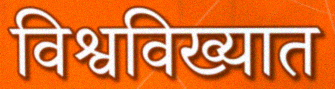
विश्वविख्यात